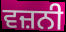
ਵਜ਼ਨੀ